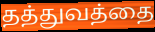
தத்துவத்தை